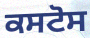
ਕਸਟੋਸ